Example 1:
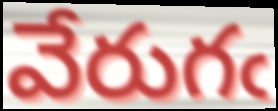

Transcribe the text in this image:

వేరుగఁ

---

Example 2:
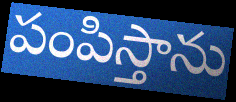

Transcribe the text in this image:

పంపిస్తాను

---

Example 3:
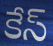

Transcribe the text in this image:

కేస్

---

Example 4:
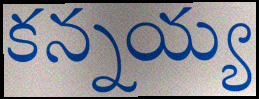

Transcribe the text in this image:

కన్నయ్య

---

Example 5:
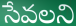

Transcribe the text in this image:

సేవలని